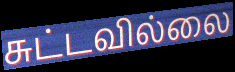
சுட்டவில்லை